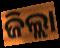
ଜିଲ୍ଲା